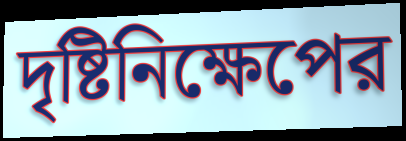
দৃষ্টিনিক্ষেপের